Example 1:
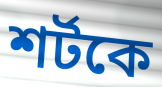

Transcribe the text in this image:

শর্টকে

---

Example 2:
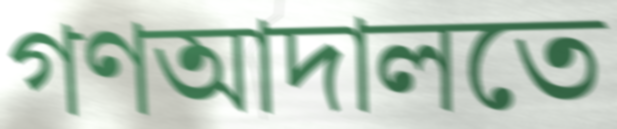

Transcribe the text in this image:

গণআদালতে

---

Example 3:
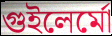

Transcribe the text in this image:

গুইলের্মো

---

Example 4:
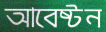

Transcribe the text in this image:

আবেষ্টন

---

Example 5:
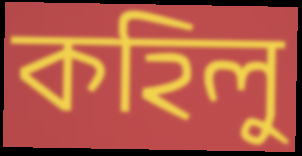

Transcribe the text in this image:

কহিলু